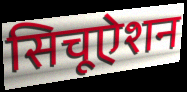
सिचूऐशन